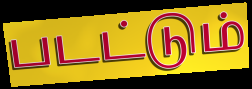
படட்டும்